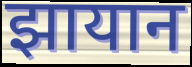
झायान